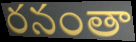
రనంతా